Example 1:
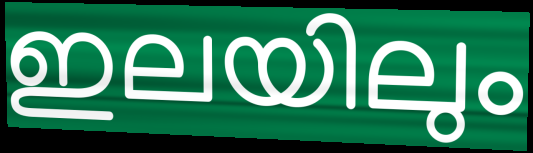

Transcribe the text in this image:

ഇലയിലും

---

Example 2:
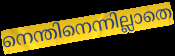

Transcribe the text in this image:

നെന്തിനെന്നില്ലാതെ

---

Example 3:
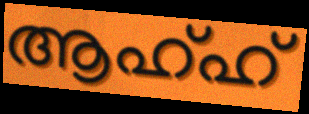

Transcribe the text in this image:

ആഹ്ഹ്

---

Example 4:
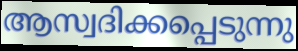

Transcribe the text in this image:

ആസ്വദിക്കപ്പെടുന്നു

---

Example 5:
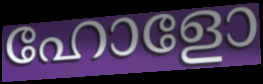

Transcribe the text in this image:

ഹോളോ